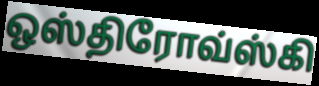
ஒஸ்திரோவ்ஸ்கி